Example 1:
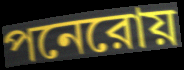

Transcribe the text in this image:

পনেরোয়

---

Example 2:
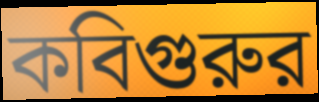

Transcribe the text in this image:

কবিগুরুর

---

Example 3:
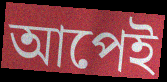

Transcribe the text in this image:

আপেই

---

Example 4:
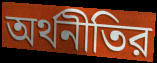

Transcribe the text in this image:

অর্থনীতির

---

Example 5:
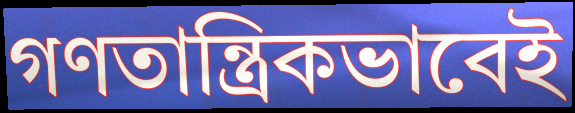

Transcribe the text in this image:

গণতান্ত্রিকভাবেই